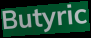
Butyric